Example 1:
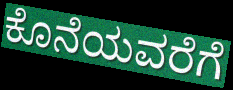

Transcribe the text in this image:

ಕೊನೆಯವರೆಗೆ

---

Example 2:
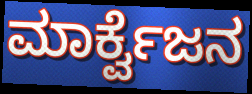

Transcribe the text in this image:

ಮಾರ್ಕ್ವೆಜನ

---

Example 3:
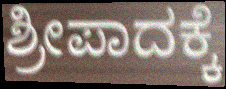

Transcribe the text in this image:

ಶ್ರೀಪಾದಕ್ಕೆ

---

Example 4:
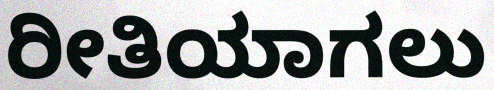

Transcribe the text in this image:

ರೀತಿಯಾಗಲು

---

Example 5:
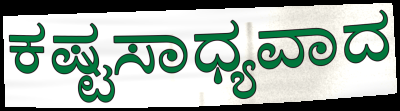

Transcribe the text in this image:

ಕಷ್ಟಸಾಧ್ಯವಾದ